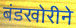
बंडखोरीने